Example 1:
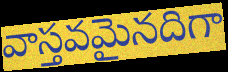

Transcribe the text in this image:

వాస్తవమైనదిగా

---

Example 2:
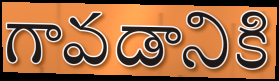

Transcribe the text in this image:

గావడానికి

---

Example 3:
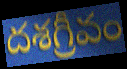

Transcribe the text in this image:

దశగ్రీవం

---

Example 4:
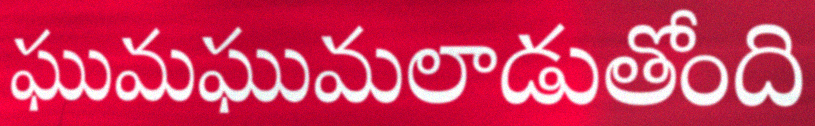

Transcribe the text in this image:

ఘుమఘుమలాడుతోంది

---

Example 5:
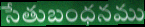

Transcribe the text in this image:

సేతుబంధనము